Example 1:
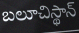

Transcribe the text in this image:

బలూచిస్థాన్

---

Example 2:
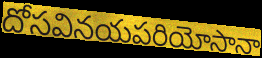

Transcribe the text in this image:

దోసవినయపరియోసానా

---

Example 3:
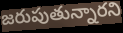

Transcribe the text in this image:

జరుపుతున్నారని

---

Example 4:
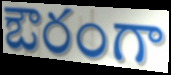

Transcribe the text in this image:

ఔరంగా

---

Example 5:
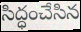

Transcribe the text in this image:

సిద్ధంచేసిన